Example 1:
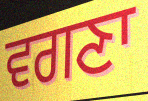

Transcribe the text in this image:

ਵਗਣਾ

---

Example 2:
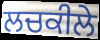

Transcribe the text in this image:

ਲਚਕੀਲੇ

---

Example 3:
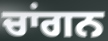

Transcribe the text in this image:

ਚਾਂਗਨ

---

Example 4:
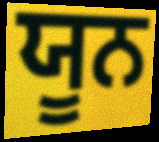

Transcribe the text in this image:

ਯੂਨ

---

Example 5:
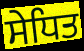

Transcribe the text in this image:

ਸੇਧਿਤ